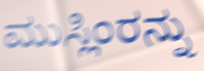
ಮುಸ್ಲಿಂರನ್ನು